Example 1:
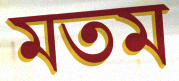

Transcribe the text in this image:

মতম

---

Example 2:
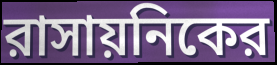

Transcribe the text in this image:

রাসায়নিকের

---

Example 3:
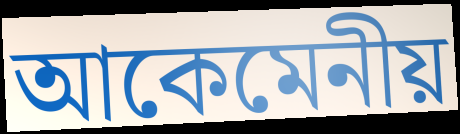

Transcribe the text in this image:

আকেমেনীয়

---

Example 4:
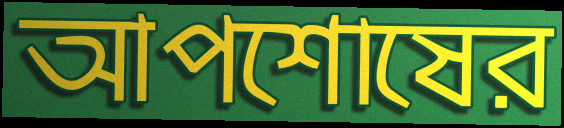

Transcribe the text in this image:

আপশোষের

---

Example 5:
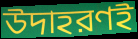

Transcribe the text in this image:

উদাহরণই